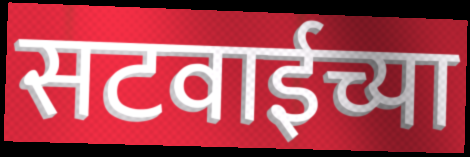
सटवाईच्या